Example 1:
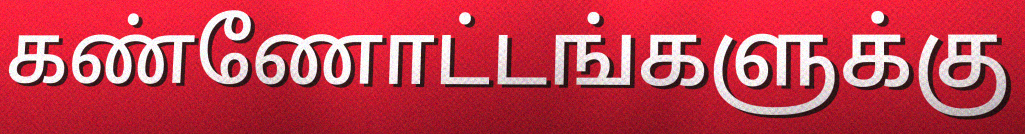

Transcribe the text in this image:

கண்ணோட்டங்களுக்கு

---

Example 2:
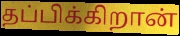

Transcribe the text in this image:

தப்பிக்கிறான்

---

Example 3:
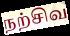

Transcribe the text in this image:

நற்சிவ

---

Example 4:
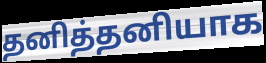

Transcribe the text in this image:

தனித்தனியாக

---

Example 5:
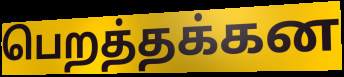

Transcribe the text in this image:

பெறத்தக்கன